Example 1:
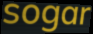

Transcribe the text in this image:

sogar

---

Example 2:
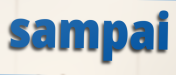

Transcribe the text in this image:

sampai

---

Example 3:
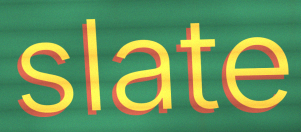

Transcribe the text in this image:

slate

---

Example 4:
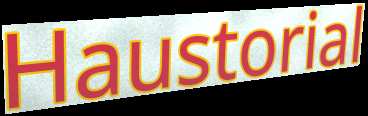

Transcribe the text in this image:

Haustorial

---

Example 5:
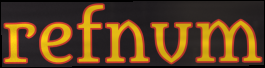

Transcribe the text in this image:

refnum